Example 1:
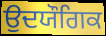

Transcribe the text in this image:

ਉਦਯੌਗਿਕ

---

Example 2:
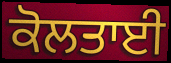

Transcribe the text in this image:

ਕੋਲਤਾਈ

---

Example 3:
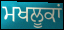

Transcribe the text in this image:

ਮਖਲੂਕਾਂ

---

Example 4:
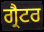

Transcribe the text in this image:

ਗ੍ਰੈਟਰ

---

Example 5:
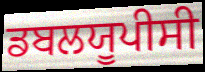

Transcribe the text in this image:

ਡਬਲਯੂਪੀਸੀ